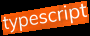
typescript